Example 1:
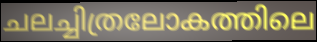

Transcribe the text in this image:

ചലച്ചിത്രലോകത്തിലെ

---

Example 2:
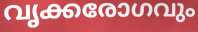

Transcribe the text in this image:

വൃക്കരോഗവും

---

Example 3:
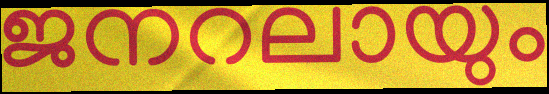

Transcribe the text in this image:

ജനറലായും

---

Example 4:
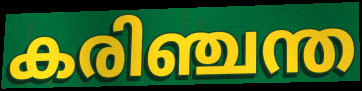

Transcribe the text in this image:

കരിഞ്ചന്ത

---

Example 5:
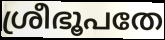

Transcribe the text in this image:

ശ്രീഭൂപതേ